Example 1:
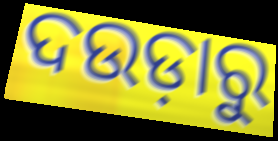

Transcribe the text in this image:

ଦଉଡ଼ାରୁ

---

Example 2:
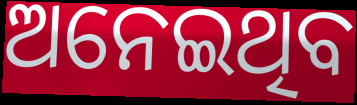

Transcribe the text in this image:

ଅନେଇଥିବ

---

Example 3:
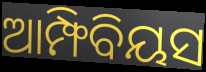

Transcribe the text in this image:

ଆମ୍ଫିବିୟସ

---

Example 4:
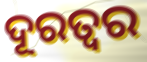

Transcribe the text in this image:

ଦୂରତ୍ଵର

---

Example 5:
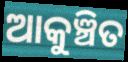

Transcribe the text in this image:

ଆକୁଞ୍ଚିତ